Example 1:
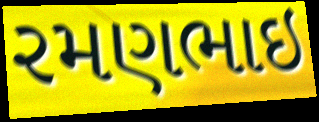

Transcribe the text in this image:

રમણભાઇ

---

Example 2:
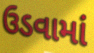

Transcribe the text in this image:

ઉડવામાં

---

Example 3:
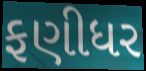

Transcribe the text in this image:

ફણીધર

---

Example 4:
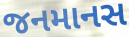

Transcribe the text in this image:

જનમાનસ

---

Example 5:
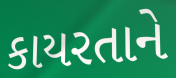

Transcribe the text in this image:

કાયરતાને